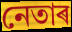
নেতাৰ